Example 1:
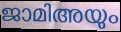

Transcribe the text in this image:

ജാമിഅയും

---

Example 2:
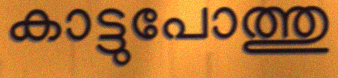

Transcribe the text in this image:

കാട്ടുപോത്തു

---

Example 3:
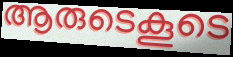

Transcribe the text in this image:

ആരുടെകൂടെ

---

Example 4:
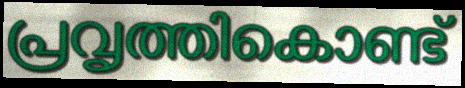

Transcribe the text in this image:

പ്രവൃത്തികൊണ്ട്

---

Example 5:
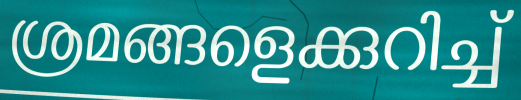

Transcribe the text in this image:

ശ്രമങ്ങളെക്കുറിച്ച്